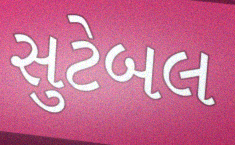
સુટેબલ